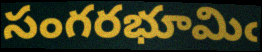
సంగరభూమిఁ